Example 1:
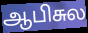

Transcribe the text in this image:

ஆபிசுல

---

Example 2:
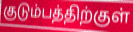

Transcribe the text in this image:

குடும்பத்திற்குள்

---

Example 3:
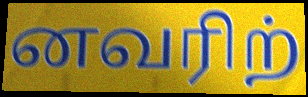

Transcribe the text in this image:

னவரிற்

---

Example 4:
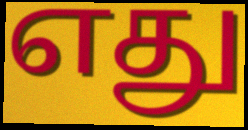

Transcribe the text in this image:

எது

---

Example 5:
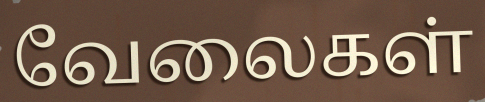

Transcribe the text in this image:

வேலைகள்